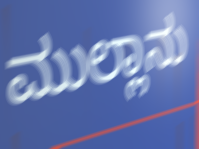
ಮುಲ್ಲಾನು